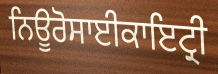
ਨਿਊਰੋਸਾਈਕਾਇਟ੍ਰੀ